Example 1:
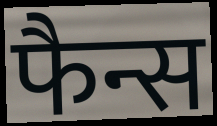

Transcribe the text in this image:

फैन्स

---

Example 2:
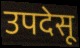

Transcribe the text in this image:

उपदेसू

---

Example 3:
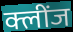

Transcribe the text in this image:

क्लींज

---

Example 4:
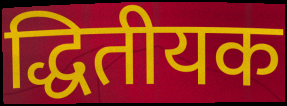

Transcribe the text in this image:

द्धितीयक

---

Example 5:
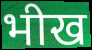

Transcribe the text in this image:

भीख